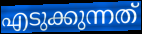
എടുക്കുന്നത്